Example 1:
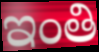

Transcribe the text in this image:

ఇంతి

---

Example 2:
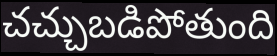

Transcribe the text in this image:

చచ్చుబడిపోతుంది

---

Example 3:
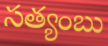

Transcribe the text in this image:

సత్యంబు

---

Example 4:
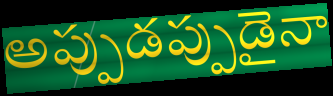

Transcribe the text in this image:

అప్పుడప్పుడైనా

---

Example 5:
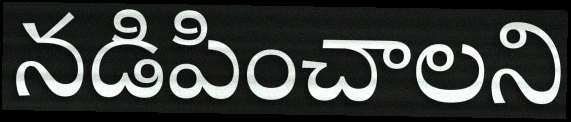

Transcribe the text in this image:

నడిపించాలని